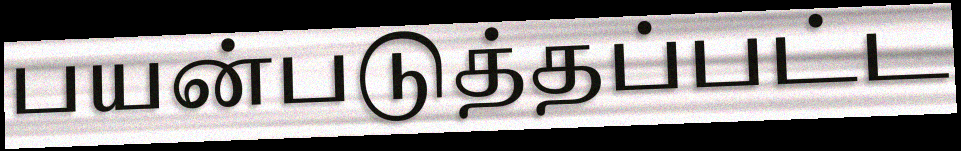
பயன்படுத்தப்பட்ட